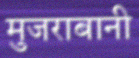
मुजराबानी